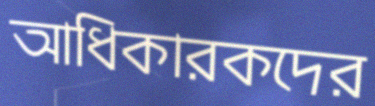
আধিকারকদের